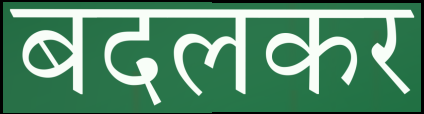
बदलकर